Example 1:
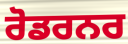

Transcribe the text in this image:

ਰੋਡਰਨਰ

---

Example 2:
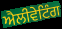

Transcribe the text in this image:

ਐਲੀਵੇਟਿੰਗ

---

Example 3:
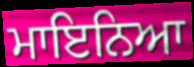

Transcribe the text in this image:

ਮਾਇਨਿਆ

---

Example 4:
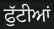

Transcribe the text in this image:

ਫੁੱਟੀਆਂ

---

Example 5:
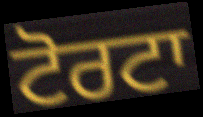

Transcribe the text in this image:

ਟੋਰਟਾ